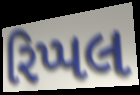
રિપ્પલ